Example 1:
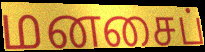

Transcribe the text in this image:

மனசைப்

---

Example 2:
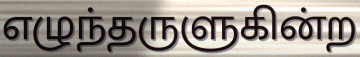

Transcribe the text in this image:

எழுந்தருளுகின்ற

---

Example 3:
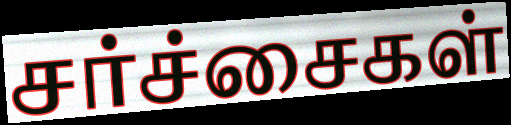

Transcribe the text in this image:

சர்ச்சைகள்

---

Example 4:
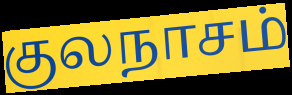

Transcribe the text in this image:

குலநாசம்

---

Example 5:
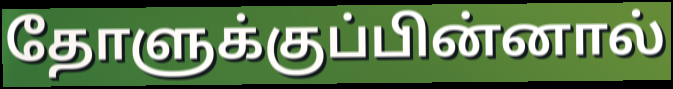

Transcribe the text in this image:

தோளுக்குப்பின்னால்